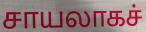
சாயலாகச்